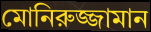
মোনিরুজ্জামান